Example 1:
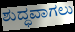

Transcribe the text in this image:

ಶುದ್ಧವಾಗಲು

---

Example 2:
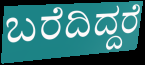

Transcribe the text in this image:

ಬರೆದಿದ್ದರೆ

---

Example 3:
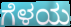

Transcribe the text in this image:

ಗೆಳಯ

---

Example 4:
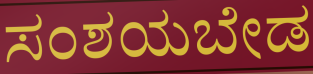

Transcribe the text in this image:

ಸಂಶಯಬೇಡ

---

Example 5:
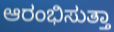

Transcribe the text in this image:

ಆರಂಭಿಸುತ್ತಾ